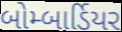
બોમ્બાર્ડિયર